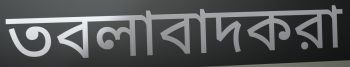
তবলাবাদকরা